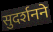
सुदर्शनने